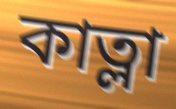
কাত্লা